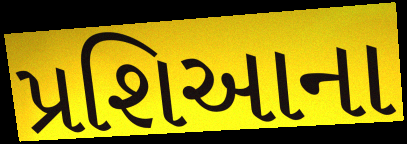
પ્રશિઆના